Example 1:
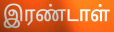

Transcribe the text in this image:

இரண்டாள்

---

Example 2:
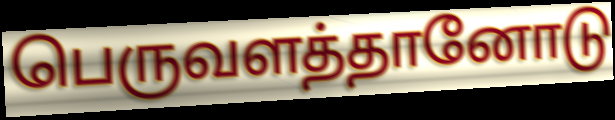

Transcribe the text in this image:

பெருவளத்தானோடு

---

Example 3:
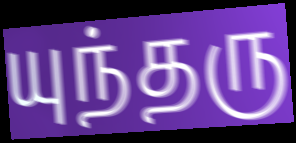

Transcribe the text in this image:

யுந்தரு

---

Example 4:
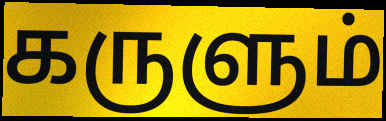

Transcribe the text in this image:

கருளும்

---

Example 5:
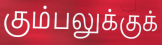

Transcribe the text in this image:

கும்பலுக்குக்